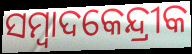
ସମ୍ୱାଦକେନ୍ଦ୍ରୀକ